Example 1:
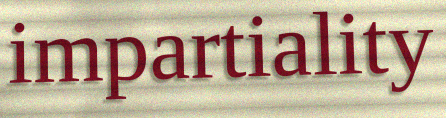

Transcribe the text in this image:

impartiality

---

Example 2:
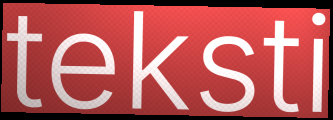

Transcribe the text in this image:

teksti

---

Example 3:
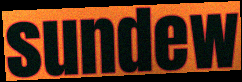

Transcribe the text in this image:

sundew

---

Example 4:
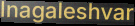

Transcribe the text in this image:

Inagaleshvar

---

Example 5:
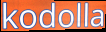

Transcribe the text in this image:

kodolla